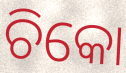
ଚିକୋ